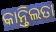
କାନ୍ତିଲତା